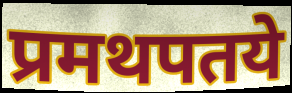
प्रमथपतये